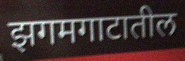
झगमगाटातील